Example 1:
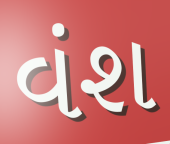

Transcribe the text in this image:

વંશ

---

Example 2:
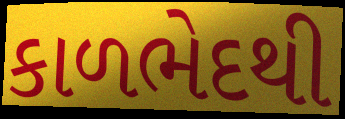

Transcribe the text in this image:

કાળભેદથી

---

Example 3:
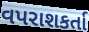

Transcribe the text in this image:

વપરાશકર્તા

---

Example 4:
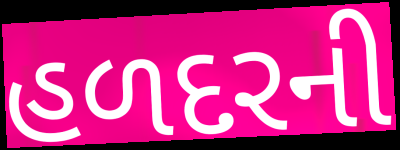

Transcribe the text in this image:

હળદરની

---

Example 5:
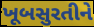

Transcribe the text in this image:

ખૂબસુરતીને